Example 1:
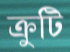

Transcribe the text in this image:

ক্ৰুটি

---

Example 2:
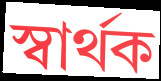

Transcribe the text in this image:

স্বাৰ্থক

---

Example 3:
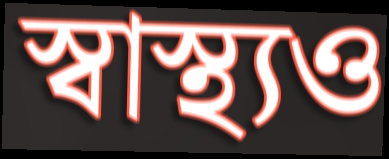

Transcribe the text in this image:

স্বাস্থ্যও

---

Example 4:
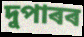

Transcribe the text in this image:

দুপাৰৰ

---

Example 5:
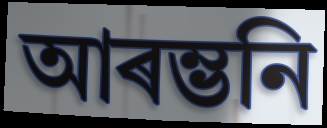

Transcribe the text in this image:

আৰম্ভনি